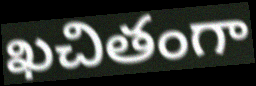
ఖచితంగా